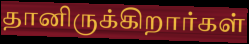
தானிருக்கிறார்கள்